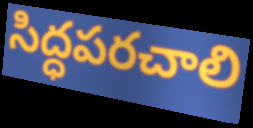
సిద్ధపరచాలి